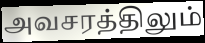
அவசரத்திலும்